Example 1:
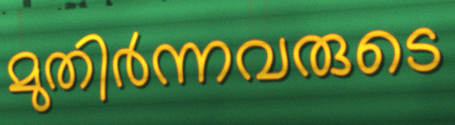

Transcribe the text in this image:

മുതിർന്നവരുടെ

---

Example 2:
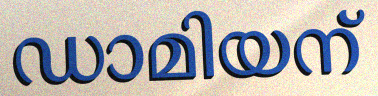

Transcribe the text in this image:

ഡാമിയന്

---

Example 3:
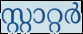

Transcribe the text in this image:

സ്റ്റാറ്റർ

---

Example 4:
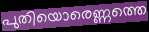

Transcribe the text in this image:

പുതിയൊരെണ്ണത്തെ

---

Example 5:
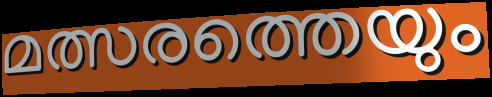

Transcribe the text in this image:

മത്സരത്തെയും